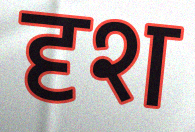
दृश